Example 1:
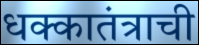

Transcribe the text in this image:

धक्कातंत्राची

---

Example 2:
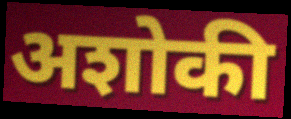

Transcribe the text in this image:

अशोकी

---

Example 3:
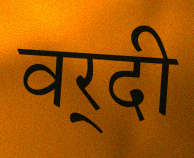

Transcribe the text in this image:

वर्दी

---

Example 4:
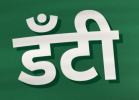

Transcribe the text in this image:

डँटी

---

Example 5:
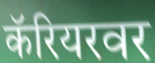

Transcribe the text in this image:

कॅरियरवर